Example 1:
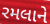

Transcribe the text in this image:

રમલાને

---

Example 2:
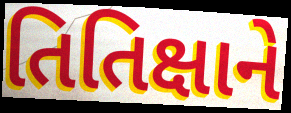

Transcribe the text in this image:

તિતિક્ષાને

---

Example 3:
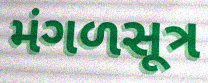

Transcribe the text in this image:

મંગળસૂત્ર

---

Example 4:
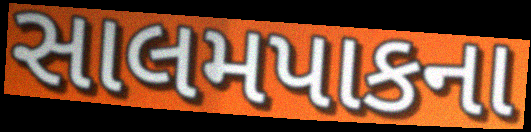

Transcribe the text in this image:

સાલમપાકના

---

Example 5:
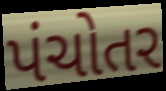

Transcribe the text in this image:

પંચોતર